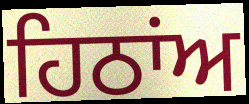
ਹਿਠਾਂਅ